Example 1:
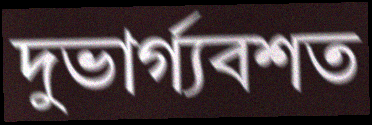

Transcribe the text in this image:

দুভার্গ্যবশত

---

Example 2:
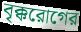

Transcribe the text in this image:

বৃক্করোগের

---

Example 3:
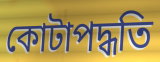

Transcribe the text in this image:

কোটাপদ্ধতি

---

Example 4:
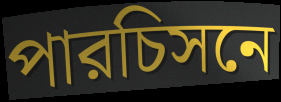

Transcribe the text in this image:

পারচিসনে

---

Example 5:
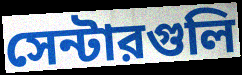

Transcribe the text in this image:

সেন্টারগুলি